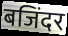
बजिंदर